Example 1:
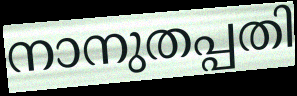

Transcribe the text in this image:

നാനുതപ്പതി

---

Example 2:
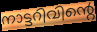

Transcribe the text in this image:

നാട്ടറിവിന്റെ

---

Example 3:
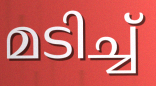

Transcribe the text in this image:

മടിച്ച്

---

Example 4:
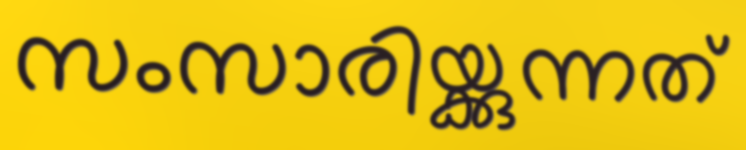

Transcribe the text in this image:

സംസാരിയ്ക്കുന്നത്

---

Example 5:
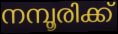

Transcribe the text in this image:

നമ്പൂരിക്ക്